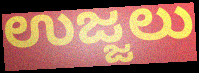
ಉಜ್ಜಲು